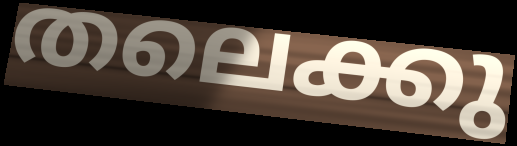
തലെക്കു